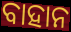
ବାହାନ